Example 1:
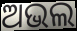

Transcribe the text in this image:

ଅଭଲ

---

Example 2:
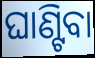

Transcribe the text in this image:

ଘାଣ୍ଟିବା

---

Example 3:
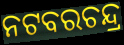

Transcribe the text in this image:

ନଟବରଚନ୍ଦ୍ର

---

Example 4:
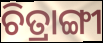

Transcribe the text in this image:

ଚିତ୍ରାଙ୍ଗୀ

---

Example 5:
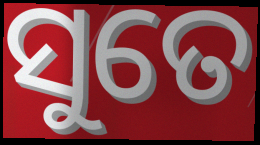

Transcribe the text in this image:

ସୁତେ